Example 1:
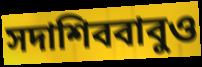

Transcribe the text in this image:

সদাশিববাবুও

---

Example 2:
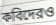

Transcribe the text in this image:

কবিদেরও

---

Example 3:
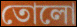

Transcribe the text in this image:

তোলো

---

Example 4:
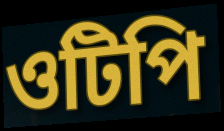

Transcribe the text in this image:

ওটিপি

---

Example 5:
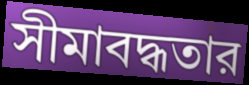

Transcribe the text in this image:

সীমাবদ্ধতার